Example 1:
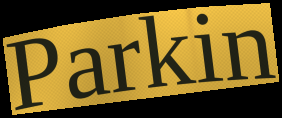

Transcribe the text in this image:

Parkin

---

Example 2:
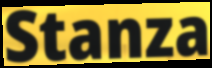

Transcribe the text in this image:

Stanza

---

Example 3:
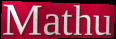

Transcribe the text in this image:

Mathu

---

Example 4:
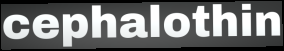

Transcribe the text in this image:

cephalothin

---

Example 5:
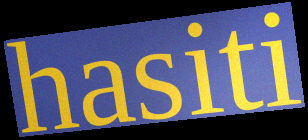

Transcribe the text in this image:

hasiti